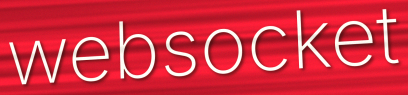
websocket